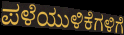
ಪಳೆಯುಳಿಕೆಗಳಿಗೆ